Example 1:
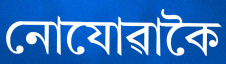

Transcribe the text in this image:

নোযোৱাকৈ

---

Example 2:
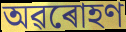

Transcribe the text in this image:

অৱৰোহণ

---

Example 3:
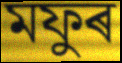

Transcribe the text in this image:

মফুৰ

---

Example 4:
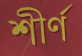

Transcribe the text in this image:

শীৰ্ণ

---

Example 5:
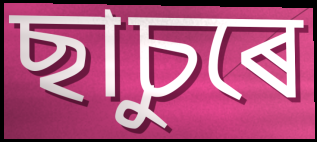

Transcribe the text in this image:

ছাচুৰে